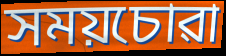
সময়চোৱা